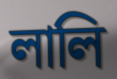
লালি